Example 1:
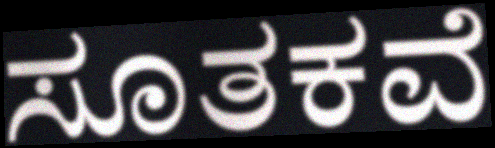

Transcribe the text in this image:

ಸೂತಕವೆ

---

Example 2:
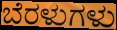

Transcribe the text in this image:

ಬೆರಳುಗಳು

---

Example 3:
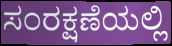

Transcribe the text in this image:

ಸಂರಕ್ಷಣೆಯಲ್ಲಿ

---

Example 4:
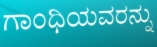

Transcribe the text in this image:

ಗಾಂಧಿಯವರನ್ನು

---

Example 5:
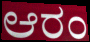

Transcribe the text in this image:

ಆರಂ